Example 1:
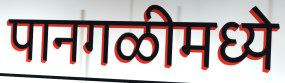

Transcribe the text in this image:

पानगळीमध्ये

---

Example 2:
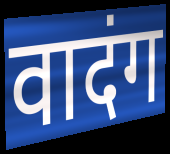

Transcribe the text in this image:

वादंग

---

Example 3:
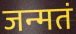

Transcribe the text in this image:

जन्मतं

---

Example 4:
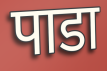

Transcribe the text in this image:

पाडा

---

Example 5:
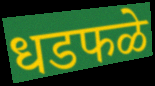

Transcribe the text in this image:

धडफळे